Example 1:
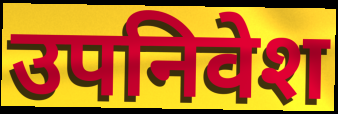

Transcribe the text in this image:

उपनिवेश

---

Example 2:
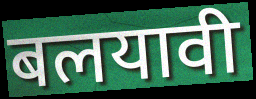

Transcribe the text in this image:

बलयावी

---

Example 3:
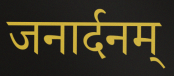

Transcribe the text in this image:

जनार्दनम्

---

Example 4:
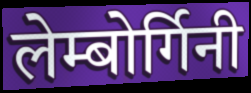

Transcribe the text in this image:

लेम्बोर्गिनी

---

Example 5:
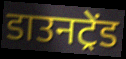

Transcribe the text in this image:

डाउनट्रेंड